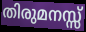
തിരുമനസ്സ്